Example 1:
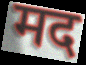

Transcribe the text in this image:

मद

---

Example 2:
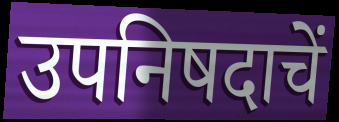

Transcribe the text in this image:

उपनिषदाचें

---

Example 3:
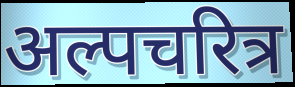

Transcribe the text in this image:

अल्पचरित्र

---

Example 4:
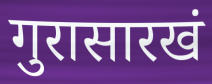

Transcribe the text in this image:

गुरासारखं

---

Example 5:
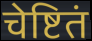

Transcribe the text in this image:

चेष्टितं